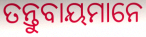
ତନ୍ତୁବାୟମାନେ